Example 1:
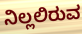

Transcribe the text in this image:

ನಿಲ್ಲಲಿರುವ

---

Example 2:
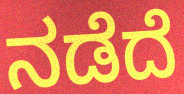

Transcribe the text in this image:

ನಡೆದೆ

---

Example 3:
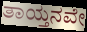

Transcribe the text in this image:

ತಾಯ್ತನವೇ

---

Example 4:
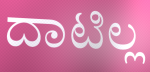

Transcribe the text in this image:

ದಾಟಿಲ್ಲ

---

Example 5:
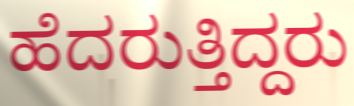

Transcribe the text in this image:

ಹೆದರುತ್ತಿದ್ದರು